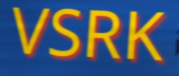
VSRK